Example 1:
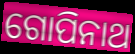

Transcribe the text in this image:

ଗୋପିନାଥ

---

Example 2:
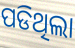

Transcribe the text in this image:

ପଡିଥିଲା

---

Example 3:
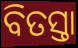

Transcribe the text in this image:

ବିତସ୍ତା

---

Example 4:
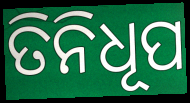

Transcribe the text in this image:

ତିନିଧୂପ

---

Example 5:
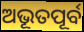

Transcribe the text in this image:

ଅଭୂତପୂର୍ବ